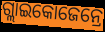
ଗ୍ଲାଇକୋଜେନ୍ରେ